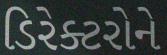
ડિરેક્ટરોને